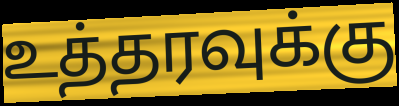
உத்தரவுக்கு